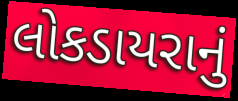
લોકડાયરાનું